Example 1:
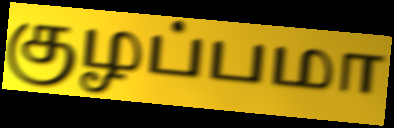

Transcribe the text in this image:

குழப்பமா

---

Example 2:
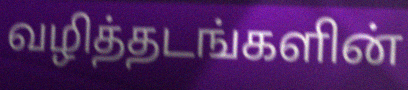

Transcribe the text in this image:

வழித்தடங்களின்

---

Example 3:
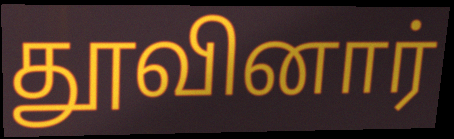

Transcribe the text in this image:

தூவினார்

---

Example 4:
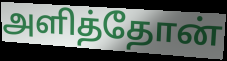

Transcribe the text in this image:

அளித்தோன்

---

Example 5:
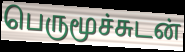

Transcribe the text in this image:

பெருமூச்சுடன்